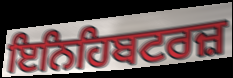
ਇਨਿਹਿਬਟਰਜ਼